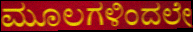
ಮೂಲಗಳಿಂದಲೇ